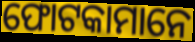
ଫୋଟକାମାନେ